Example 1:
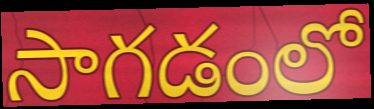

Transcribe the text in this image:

సాగడంలో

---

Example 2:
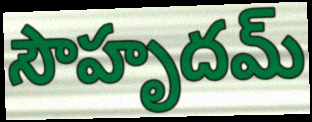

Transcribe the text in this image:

సౌహృదమ్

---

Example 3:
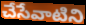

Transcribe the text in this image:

చేసేవాటిని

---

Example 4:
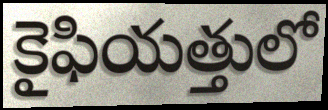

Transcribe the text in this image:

కైఫియత్తులో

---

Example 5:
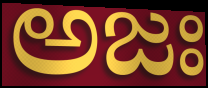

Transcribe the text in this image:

అజః